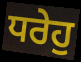
ਧਰੇਹੁ